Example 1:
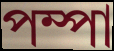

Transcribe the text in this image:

পম্পা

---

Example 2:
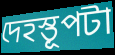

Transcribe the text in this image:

দেহস্তূপটা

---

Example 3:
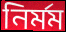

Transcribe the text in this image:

নির্মম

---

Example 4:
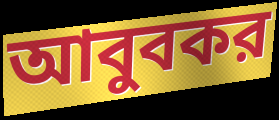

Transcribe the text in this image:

আবুবকর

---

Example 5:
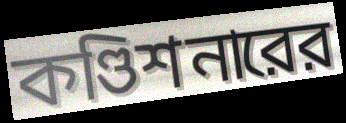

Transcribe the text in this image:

কণ্ডিশনারের